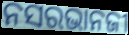
ନସରଭାନଜୀ